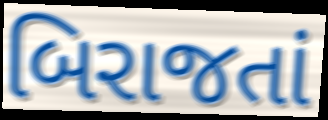
બિરાજતાં